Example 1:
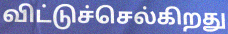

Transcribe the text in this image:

விட்டுச்செல்கிறது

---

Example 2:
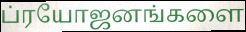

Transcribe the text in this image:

ப்ரயோஜனங்களை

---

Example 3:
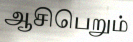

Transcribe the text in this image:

ஆசிபெறும்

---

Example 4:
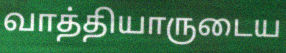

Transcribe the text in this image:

வாத்தியாருடைய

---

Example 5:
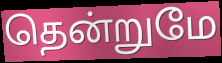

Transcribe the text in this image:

தென்றுமே